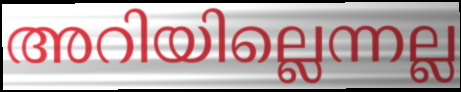
അറിയില്ലെന്നല്ല